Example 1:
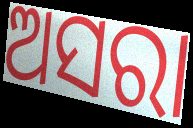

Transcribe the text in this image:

ଅସରା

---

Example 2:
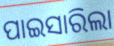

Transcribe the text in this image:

ପାଇସାରିଲା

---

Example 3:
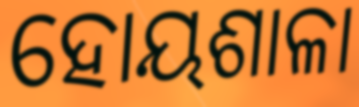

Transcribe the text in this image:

ହୋୟଶାଳା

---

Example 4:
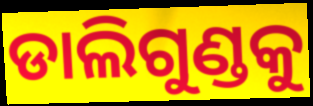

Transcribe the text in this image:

ଡାଲିଗୁଣ୍ଡକୁ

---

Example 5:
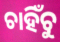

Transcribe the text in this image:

ଚାହିଁଚୁ